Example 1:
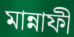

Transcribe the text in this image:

মান্নাফী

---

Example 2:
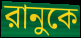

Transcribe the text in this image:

রানুকে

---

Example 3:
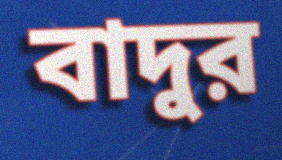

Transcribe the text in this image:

বাদুর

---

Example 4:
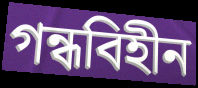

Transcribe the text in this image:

গন্ধবিহীন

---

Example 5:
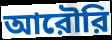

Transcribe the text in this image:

আরৌরি